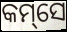
କମ୍‌ସେ